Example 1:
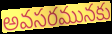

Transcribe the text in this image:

అవసరమునకు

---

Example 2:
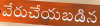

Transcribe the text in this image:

వేరుచేయబడిన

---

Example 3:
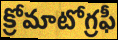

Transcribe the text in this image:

క్రోమాటోగ్రఫీ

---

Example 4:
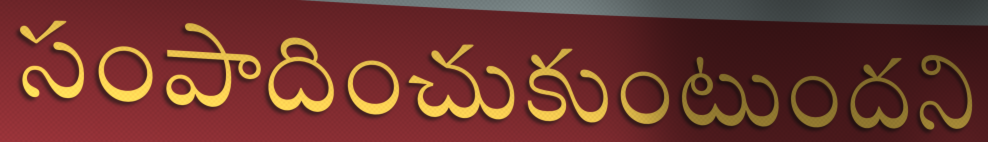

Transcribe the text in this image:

సంపాదించుకుంటుందని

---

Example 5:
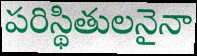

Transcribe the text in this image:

పరిస్థితులనైనా